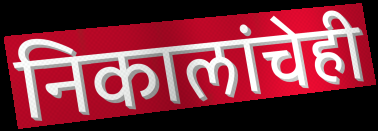
निकालांचेही